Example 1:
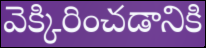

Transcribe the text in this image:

వెక్కిరించడానికి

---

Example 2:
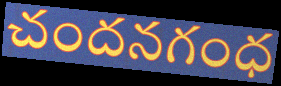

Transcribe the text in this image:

చందనగంధ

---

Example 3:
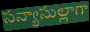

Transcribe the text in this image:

సన్యాసుల్లాగా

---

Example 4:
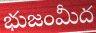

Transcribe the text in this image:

భుజంమీద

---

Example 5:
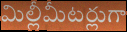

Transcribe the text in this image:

మిల్లీమీటర్లుగా